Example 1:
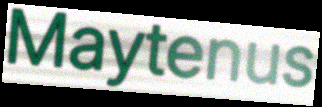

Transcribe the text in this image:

Maytenus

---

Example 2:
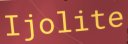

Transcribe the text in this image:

Ijolite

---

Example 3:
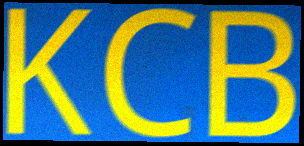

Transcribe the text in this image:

KCB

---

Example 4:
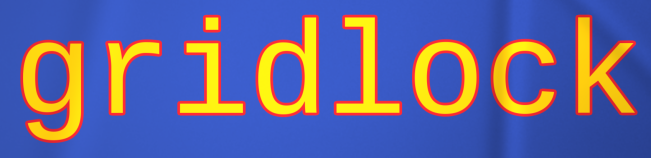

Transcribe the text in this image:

gridlock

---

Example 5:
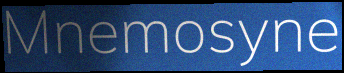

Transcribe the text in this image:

Mnemosyne